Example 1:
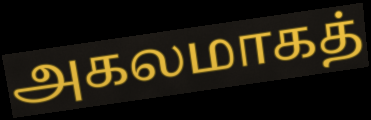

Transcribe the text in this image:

அகலமாகத்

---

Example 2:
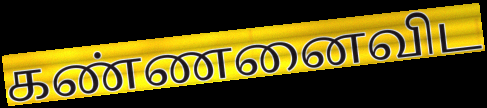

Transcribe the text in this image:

கண்ணனைவிட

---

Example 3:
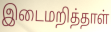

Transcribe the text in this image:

இடைமறித்தாள்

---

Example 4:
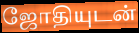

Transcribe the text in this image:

ஜோதியுடன்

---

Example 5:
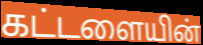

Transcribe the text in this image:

கட்டளையின்